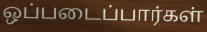
ஒப்படைப்பார்கள்